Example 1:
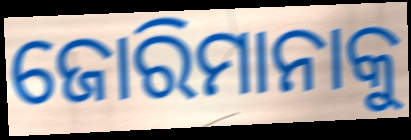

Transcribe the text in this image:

ଜୋରିମାନାକୁ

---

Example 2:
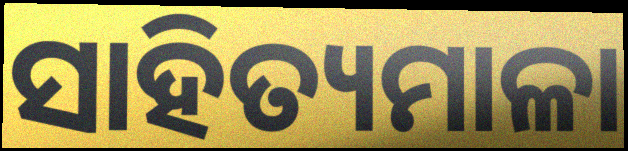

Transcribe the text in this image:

ସାହିତ୍ୟମାଳା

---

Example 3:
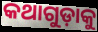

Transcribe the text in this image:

କଥାଗୁଡ଼ାକୁ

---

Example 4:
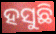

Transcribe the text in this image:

ହସୁଛି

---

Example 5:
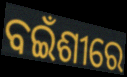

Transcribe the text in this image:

ବଇଁଶୀରେ